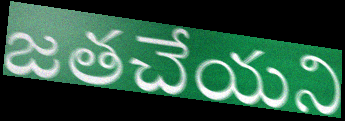
జతచేయని